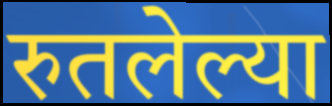
रुतलेल्या